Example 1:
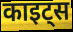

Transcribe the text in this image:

काइट्स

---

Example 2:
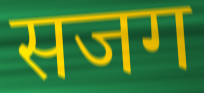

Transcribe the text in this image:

सजग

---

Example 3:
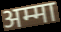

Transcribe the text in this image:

अम्मा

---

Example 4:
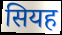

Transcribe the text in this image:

सियह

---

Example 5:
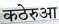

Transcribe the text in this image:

कठेरुआ